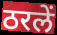
ठरलें